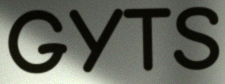
GYTS